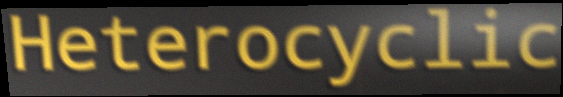
Heterocyclic